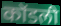
कोंडली